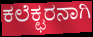
ಕಲೆಕ್ಟರನಾಗಿ